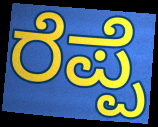
ರೆಪ್ಪೆ